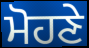
ਮੋਹਣੇ